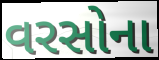
વરસોના